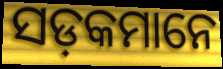
ସଡ଼କମାନେ